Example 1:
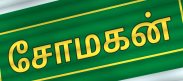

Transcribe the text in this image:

சோமகன்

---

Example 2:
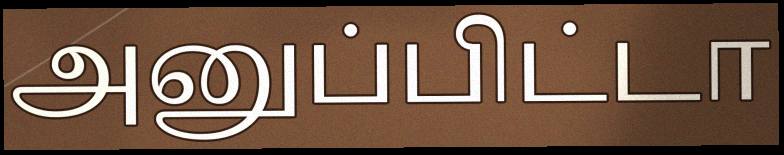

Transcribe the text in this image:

அனுப்பிட்டா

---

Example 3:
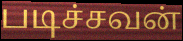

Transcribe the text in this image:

படிச்சவன்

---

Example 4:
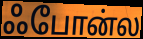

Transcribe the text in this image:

ஃபோன்ல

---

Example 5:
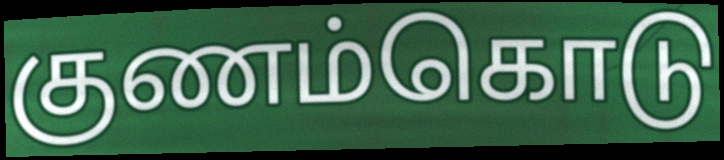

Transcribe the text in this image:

குணம்கொடு